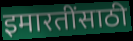
इमारतींसाठी